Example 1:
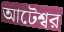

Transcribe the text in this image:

আটেশ্বর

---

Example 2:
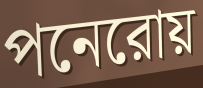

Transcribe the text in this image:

পনেরোয়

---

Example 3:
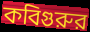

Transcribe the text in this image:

কবিগুরুর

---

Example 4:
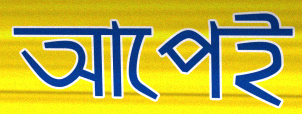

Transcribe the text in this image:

আপেই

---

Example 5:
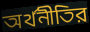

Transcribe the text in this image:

অর্থনীতির